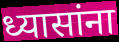
ध्यासांना